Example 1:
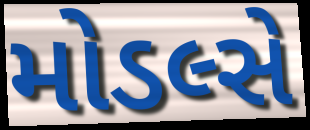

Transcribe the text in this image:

મોડલ્સે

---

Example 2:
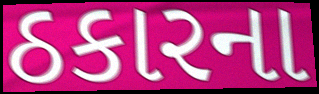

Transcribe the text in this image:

ઠકારના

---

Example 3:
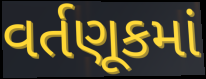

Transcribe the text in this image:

વર્તણૂકમાં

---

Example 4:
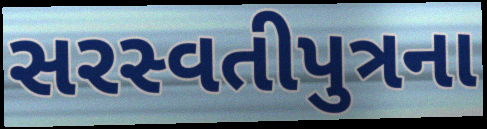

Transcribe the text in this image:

સરસ્વતીપુત્રના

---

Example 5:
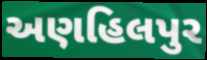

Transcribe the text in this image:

અણહિલપુર